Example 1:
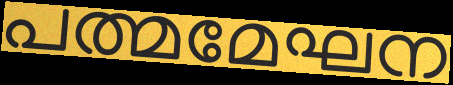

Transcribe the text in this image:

പത്മമേഘന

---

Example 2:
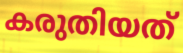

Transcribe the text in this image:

കരുതിയത്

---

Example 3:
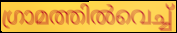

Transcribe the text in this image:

ഗ്രാമത്തിൽവെച്ച്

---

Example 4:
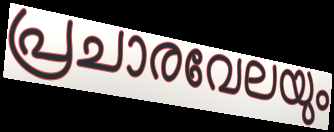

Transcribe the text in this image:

പ്രചാരവേലയും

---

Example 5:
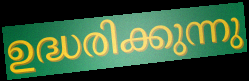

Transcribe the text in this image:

ഉദ്ധരിക്കുന്നു